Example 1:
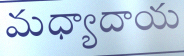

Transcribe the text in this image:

మధ్యాదాయ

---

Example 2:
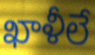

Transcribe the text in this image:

ఖాళీలే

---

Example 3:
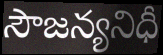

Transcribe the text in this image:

సౌజన్యనిధీ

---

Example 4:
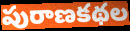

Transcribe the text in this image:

పురాణకథల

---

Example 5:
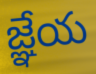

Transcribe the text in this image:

జ్ఞేయ